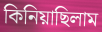
কিনিয়াছিলাম